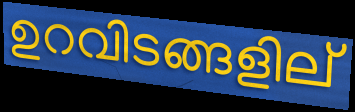
ഉറവിടങ്ങളില്